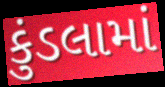
કુંડલામાં